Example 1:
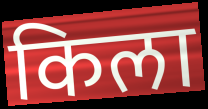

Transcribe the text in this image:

किला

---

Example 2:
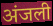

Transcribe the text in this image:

अंजली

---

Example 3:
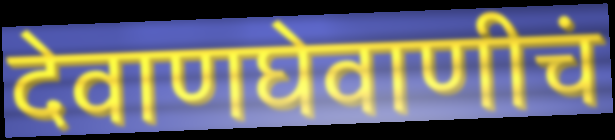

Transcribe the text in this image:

देवाणघेवाणीचं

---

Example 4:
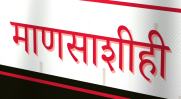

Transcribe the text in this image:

माणसाशीही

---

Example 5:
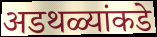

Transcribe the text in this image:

अडथळ्यांकडे